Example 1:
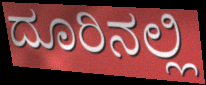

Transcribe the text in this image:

ದೂರಿನಲ್ಲಿ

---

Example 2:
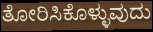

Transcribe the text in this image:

ತೋರಿಸಿಕೊಳ್ಳುವುದು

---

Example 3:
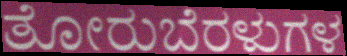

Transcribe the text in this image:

ತೋರುಬೆರಳುಗಳ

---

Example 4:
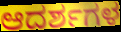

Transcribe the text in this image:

ಆದರ್ಶಗಳ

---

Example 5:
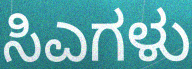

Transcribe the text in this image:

ಸಿಎಗಳು